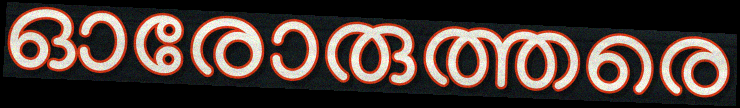
ഓരോരുത്തരെ